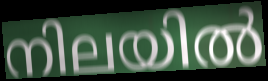
നിലയിൽ